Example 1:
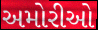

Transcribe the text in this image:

અમોરીઓ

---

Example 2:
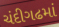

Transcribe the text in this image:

ચંદીગઢમાં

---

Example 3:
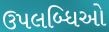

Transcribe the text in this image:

ઉપલબ્ધિઓ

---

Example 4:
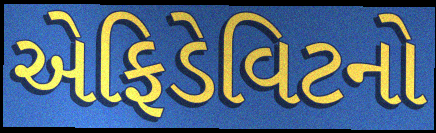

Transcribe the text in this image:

એફિડેવિટનો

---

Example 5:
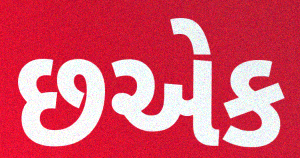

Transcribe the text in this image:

છએક